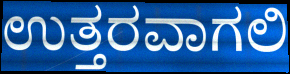
ಉತ್ತರವಾಗಲಿ